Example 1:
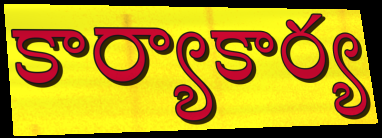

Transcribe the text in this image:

కార్యాకార్య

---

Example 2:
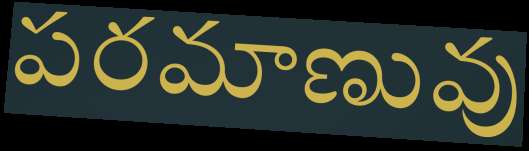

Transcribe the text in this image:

పరమాణువు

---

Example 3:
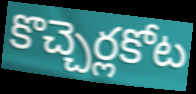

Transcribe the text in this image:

కొచ్చెర్లకోట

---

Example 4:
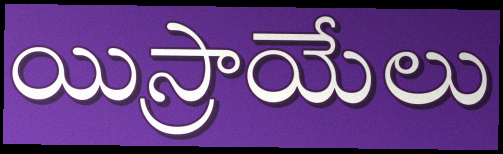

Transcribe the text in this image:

యిస్రాయేలు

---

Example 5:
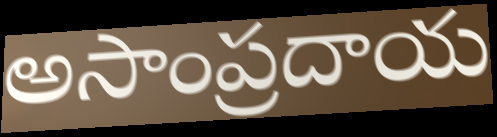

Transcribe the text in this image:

అసాంప్రదాయ